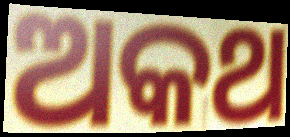
ଅକଥ